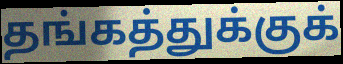
தங்கத்துக்குக்